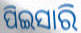
ପିଇସାରି